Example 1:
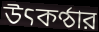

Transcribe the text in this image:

উৎকণ্ঠার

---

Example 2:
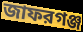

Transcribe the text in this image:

জাফরগঞ্জ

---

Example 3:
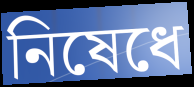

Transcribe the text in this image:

নিষেধে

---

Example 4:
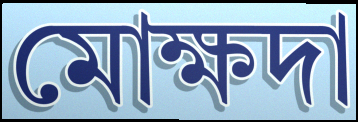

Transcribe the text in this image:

মোক্ষদা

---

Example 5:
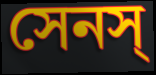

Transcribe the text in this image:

সেনস্